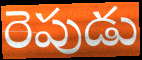
రెపుడు